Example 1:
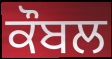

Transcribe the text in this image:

ਕੌਬਲ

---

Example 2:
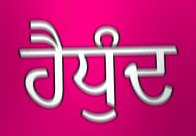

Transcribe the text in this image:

ਹੈਧੁੰਦ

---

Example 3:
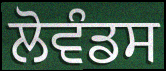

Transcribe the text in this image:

ਲੋਵੰਡਸ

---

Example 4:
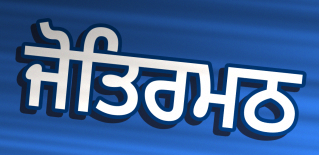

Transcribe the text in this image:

ਜੋਤਿਰਮਠ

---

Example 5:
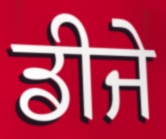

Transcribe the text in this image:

ਡੀਜੇ